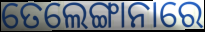
ତେଲେଙ୍ଗାନାରେ